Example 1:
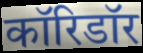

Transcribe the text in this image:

कॉरिडॉर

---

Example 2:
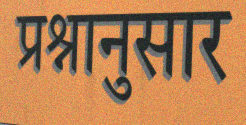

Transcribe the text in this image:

प्रश्नानुसार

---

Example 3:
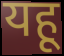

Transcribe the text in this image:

यहू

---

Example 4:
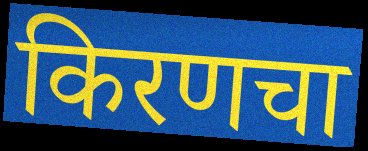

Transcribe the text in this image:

किरणचा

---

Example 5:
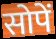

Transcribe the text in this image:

सोपें